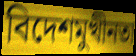
বিদেশমুখীনতা